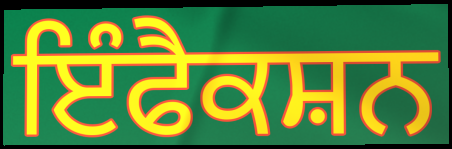
ਇੰਫੈਕਸ਼ਨ